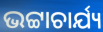
ଭଟ୍ଟାଚାର୍ଯ୍ୟ